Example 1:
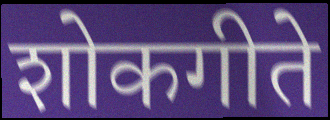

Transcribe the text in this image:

शोकगीते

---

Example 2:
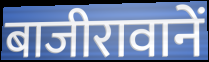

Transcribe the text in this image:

बाजीरावानें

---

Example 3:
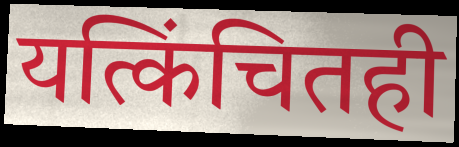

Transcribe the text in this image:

यत्किंचितही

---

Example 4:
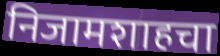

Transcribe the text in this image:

निजामशाहचा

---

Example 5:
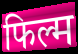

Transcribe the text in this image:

फिल्म